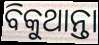
ବିକୁଥାନ୍ତା